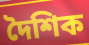
দৈশিক